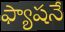
ఫ్యాషనే